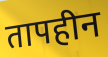
तापहीन